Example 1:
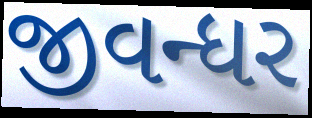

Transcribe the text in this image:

જીવન્ધર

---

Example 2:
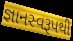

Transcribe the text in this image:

જ્ઞાનસ્વરૂપથી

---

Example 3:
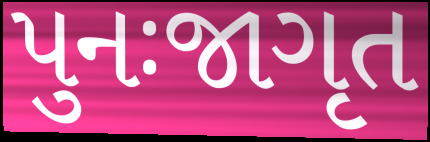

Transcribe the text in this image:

પુનઃજાગૃત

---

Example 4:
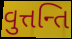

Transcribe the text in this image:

વુત્તન્તિ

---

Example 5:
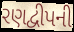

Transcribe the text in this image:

રણદ્વીપની